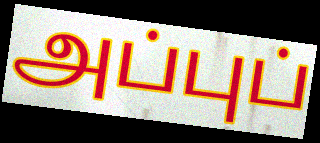
அப்புப்